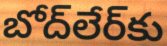
బోద్‌లేర్‌కు